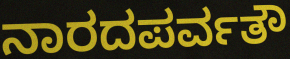
ನಾರದಪರ್ವತೌ